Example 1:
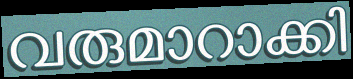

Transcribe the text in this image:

വരുമാറാക്കി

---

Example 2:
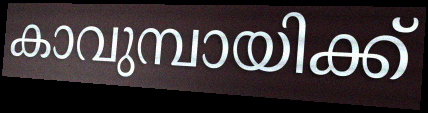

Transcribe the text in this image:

കാവുമ്പായിക്ക്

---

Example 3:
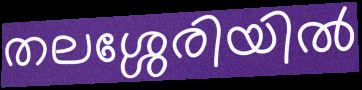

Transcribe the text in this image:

തലശ്ശേരിയിൽ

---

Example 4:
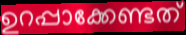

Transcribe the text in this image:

ഉറപ്പാക്കേണ്ടത്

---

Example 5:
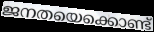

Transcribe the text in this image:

ജനതയെക്കൊണ്ട്